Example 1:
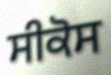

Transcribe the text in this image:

ਸੀਕੋਸ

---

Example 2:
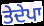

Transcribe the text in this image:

ਤੇਦੇਪਾ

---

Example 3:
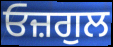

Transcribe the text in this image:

ਓਜ਼ਗੁਲ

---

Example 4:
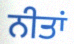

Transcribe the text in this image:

ਨੀਤਾਂ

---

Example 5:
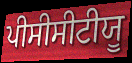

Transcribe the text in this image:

ਪੀਸੀਸੀਟੀਯੂ